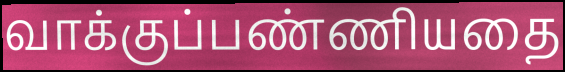
வாக்குப்பண்ணியதை